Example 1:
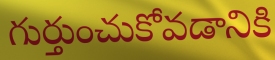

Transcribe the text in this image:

గుర్తుంచుకోవడానికి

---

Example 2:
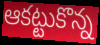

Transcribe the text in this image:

ఆకట్టుకొన్న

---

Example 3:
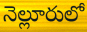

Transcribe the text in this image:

నెల్లూరులో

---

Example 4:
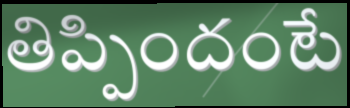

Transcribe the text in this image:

తిప్పిందంటే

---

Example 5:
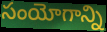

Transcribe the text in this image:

సంయోగాన్ని